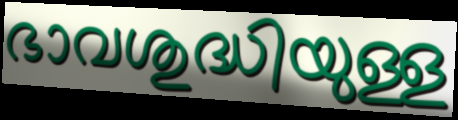
ഭാവശുദ്ധിയുള്ള